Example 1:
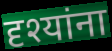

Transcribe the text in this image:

दृश्यांना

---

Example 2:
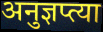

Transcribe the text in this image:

अनुज्ञप्त्या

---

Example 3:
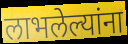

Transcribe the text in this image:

लाभलेल्यांना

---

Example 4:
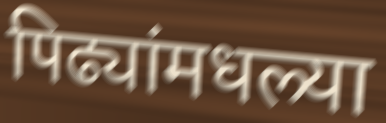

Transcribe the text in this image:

पिढ्यांमधल्या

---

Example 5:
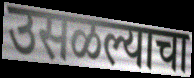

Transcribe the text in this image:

उसळल्याचा